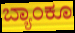
ಬ್ಯಾಂಕೂ